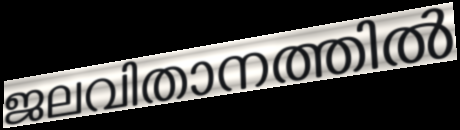
ജലവിതാനത്തിൽ